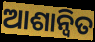
ଆଶାନ୍ବିତ